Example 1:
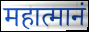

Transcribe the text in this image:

महात्मानं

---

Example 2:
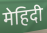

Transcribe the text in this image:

मेहिदी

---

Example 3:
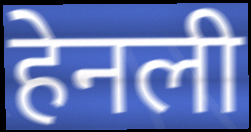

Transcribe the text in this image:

हेनली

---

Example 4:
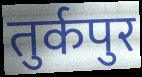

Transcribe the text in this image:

तुर्कपुर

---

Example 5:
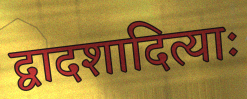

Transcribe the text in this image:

द्वादशादित्याः